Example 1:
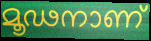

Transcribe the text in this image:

മൂഢനാണ്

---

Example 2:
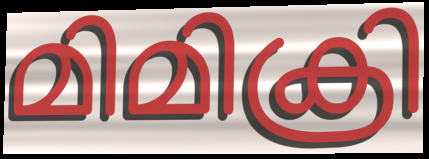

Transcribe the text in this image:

മിമിക്രി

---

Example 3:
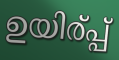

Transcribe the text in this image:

ഉയിര്പ്പ്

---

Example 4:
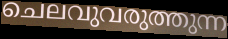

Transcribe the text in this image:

ചെലവുവരുത്തുന്ന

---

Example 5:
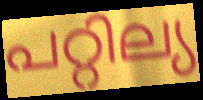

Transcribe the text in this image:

പറ്റില്യ